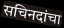
सचिनदांचा